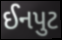
ઈનપુટ